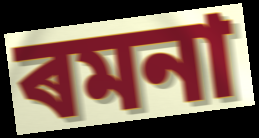
ৰমনা